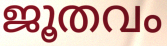
ജൂതവം